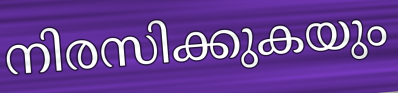
നിരസിക്കുകയും